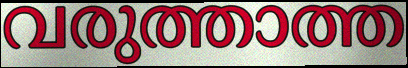
വരുത്താത്ത